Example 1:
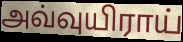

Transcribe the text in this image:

அவ்வுயிராய்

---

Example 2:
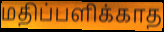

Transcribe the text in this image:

மதிப்பளிக்காத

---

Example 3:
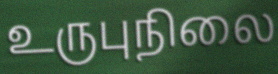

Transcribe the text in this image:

உருபுநிலை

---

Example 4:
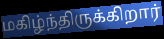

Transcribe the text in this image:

மகிழ்ந்திருக்கிறார்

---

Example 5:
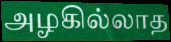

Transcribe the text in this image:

அழகில்லாத